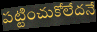
పట్టించుకోలేదనే